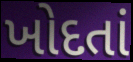
ખોદતાં